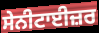
ਸੇਨੀਟਾਈਜ਼ਰ